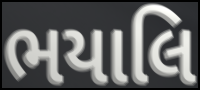
ભયાલિ